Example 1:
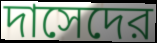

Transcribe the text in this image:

দাসেদের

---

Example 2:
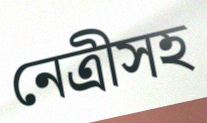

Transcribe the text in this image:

নেত্রীসহ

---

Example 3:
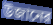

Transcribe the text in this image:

উজানের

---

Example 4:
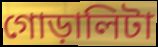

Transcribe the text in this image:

গোড়ালিটা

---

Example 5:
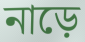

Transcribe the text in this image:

নাড়ে